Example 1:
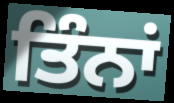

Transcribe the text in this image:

ਤਿੰਨਾਂ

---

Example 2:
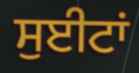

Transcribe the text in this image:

ਸੁਈਟਾਂ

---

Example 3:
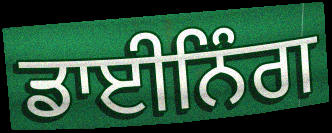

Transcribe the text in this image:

ਡਾਈਨਿੰਗ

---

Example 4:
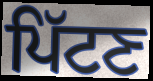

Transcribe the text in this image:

ਪਿੱਟਣ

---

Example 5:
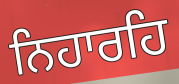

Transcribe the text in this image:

ਨਿਹਾਰਹਿ